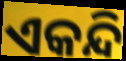
ଏକନ୍ଦି